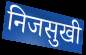
निजसुखी